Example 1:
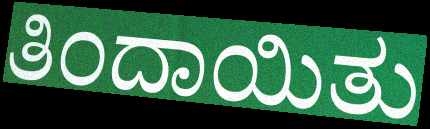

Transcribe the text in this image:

ತಿಂದಾಯಿತು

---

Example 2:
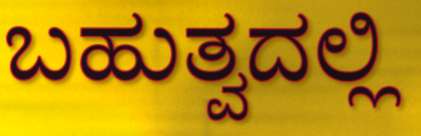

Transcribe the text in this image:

ಬಹುತ್ವದಲ್ಲಿ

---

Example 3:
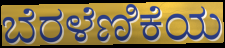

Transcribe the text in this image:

ಬೆರಳೆಣಿಕೆಯ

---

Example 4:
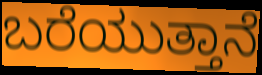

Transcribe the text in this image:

ಬರೆಯುತ್ತಾನೆ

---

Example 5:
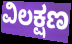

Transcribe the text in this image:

ವಿಲಕ್ಷಣ